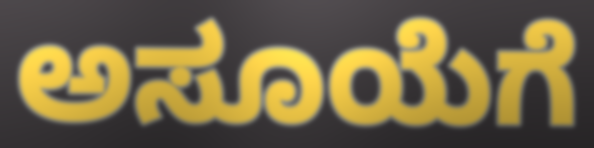
ಅಸೂಯೆಗೆ